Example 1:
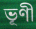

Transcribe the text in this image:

ভূণী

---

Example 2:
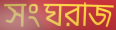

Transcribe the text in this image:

সংঘরাজ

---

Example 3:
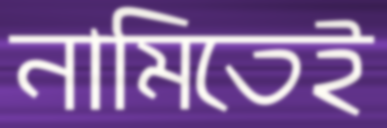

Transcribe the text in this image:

নামিতেই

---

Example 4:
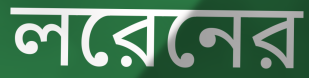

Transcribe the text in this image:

লরেনের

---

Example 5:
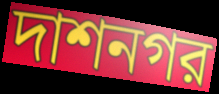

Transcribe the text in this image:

দাশনগর